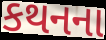
કથનના